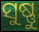
ସୁଷ୍ଣୁ